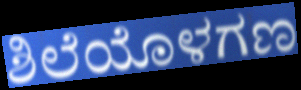
ಶಿಲೆಯೊಳಗಣ